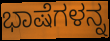
ಭಾಷೆಗಳನ್ನ